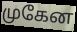
முகேன